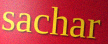
sachar